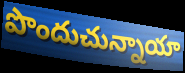
పొందుచున్నాయా